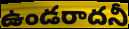
ఉండరాదనీ